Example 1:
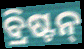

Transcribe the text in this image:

ବ୍ରିଷ୍ଟନ୍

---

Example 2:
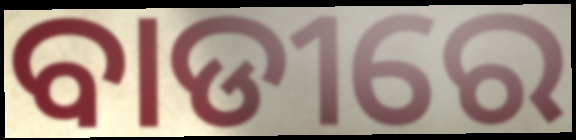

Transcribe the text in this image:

ବାଡୀରେ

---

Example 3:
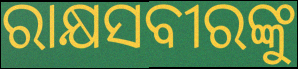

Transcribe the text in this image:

ରାକ୍ଷସବୀରଙ୍କୁ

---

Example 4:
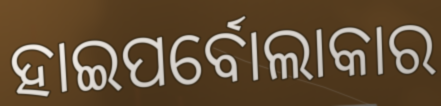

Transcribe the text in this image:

ହାଇପର୍ବୋଲାକାର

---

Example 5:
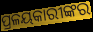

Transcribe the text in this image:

ପ୍ରଳୟକାରୀଙ୍କର